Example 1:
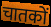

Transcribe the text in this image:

चातकों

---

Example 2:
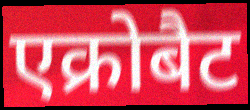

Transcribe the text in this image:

एक्रोबैट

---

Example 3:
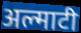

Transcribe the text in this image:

अल्माटी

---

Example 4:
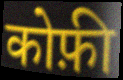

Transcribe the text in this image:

कोफ़ी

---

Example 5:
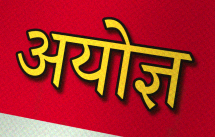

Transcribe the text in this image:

अयोज्ञ